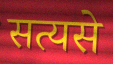
सत्यसे